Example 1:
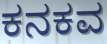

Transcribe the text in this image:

ಕನಕವ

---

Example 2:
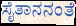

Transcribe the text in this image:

ಸೈತಾನನಂತೆ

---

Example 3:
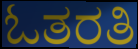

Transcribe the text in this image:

ಓತರತಿ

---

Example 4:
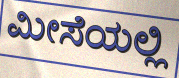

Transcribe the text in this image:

ಮೀಸೆಯಲ್ಲಿ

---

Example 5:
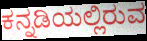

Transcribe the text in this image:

ಕನ್ನಡಿಯಲ್ಲಿರುವ